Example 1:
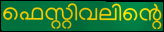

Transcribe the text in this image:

ഫെസ്റ്റിവലിന്റെ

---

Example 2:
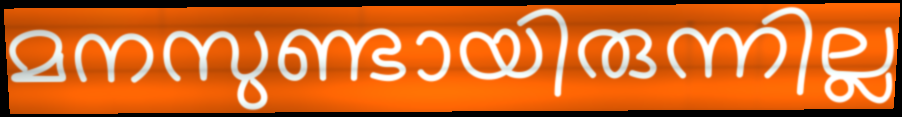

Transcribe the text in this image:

മനസുണ്ടായിരുന്നില്ല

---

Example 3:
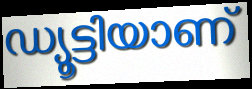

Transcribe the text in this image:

ഡ്യൂട്ടിയാണ്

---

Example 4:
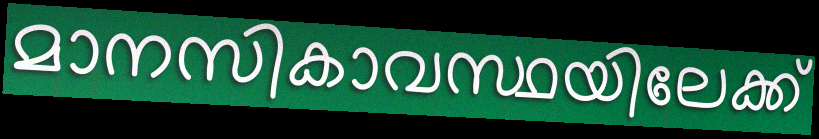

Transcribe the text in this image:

മാനസികാവസ്ഥയിലേക്ക്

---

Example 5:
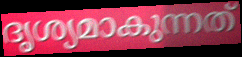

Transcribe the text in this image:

ദൃശ്യമാകുന്നത്